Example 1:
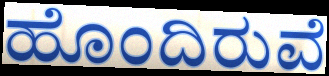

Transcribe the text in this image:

ಹೊಂದಿರುವೆ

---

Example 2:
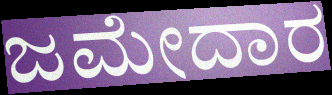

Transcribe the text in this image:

ಜಮೇದಾರ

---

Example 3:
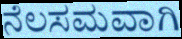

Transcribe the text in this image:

ನೆಲಸಮವಾಗಿ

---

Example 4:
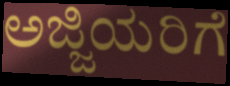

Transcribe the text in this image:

ಅಜ್ಜಿಯರಿಗೆ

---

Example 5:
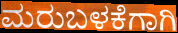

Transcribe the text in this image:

ಮರುಬಳಕೆಗಾಗಿ